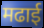
मढाई